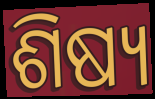
ଶିଷ୍ଯ